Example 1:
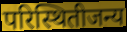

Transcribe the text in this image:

परिस्थितीजन्य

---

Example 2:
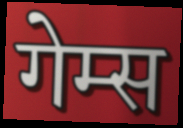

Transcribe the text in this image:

गेम्स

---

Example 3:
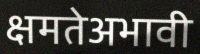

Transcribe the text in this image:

क्षमतेअभावी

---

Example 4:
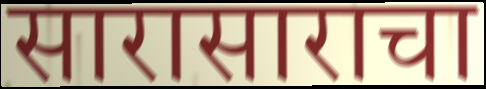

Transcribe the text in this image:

सारासाराचा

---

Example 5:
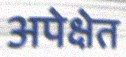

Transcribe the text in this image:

अपेक्षेत